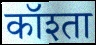
कॉश्ता